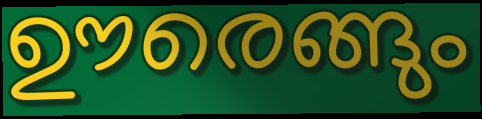
ഊരെങ്ങും